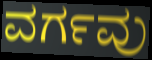
ವರ್ಗವು